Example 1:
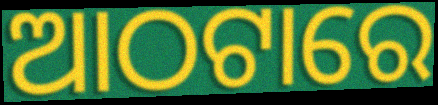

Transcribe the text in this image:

ଆଠଟାରେ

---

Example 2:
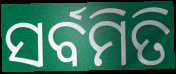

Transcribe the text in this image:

ସର୍ବମିତି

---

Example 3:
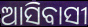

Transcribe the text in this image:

ଆସିବାସୀ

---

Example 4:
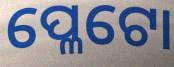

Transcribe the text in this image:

ପ୍ଳେଟୋ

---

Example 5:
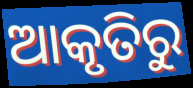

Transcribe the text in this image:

ଆକୃତିରୁ